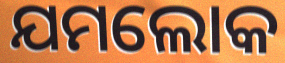
ଯମଲୋକ